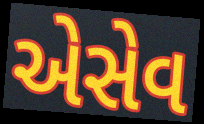
એસેવ